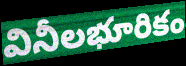
వినీలభూరికం